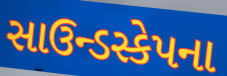
સાઉન્ડસ્કેપના